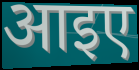
आइए